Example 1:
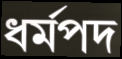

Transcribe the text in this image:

ধর্মপদ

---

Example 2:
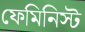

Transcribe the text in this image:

ফেমিনিস্ট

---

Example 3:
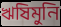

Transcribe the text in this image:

ঋষিমুনি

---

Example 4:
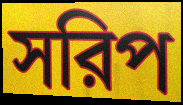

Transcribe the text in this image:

সরিপ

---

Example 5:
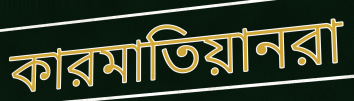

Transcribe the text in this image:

কারমাতিয়ানরা